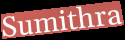
Sumithra